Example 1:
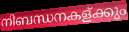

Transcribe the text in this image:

നിബന്ധനകള്ക്കും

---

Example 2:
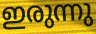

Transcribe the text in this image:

ഇരുന്നു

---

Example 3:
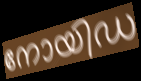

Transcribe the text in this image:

നോയിഡ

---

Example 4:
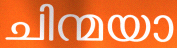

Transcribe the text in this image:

ചിന്മയാ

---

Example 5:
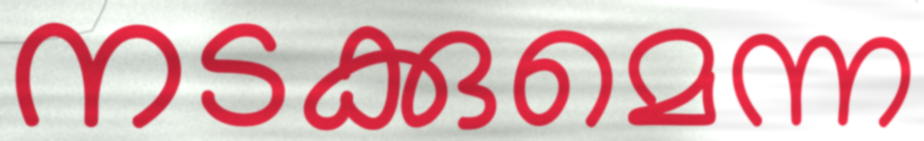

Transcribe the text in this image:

നടക്കുമെന്ന